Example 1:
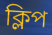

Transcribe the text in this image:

ক্লিপ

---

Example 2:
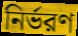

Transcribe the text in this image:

নির্ভরণ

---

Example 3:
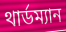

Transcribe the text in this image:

থার্ডম্যান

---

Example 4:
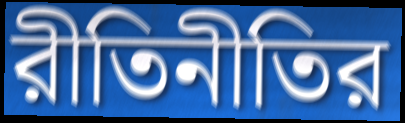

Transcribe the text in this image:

রীতিনীতির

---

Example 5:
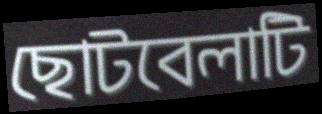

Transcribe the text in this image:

ছোটবেলাটি